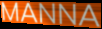
MANNA